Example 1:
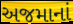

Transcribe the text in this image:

અજમાનાં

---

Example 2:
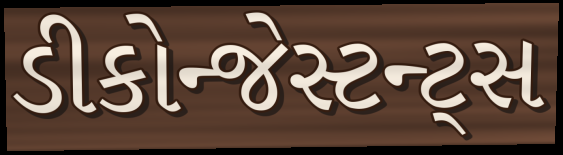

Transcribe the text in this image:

ડીકોન્જેસ્ટન્ટ્સ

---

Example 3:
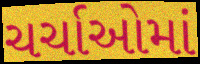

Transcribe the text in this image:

ચર્ચાઓમાં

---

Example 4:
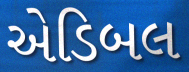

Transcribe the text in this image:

એડિબલ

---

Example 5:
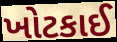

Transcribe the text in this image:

ખોટકાઈ